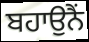
ਬਹਾਉਨੈਂ